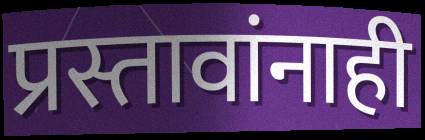
प्रस्तावांनाही